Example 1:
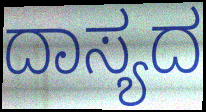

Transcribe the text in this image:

ದಾಸ್ಯದ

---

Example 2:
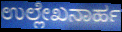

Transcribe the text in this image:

ಉಲ್ಲೇಖನಾರ್ಹ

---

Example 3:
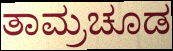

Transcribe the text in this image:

ತಾಮ್ರಚೂಡ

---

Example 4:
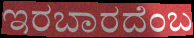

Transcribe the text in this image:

ಇರಬಾರದೆಂಬ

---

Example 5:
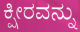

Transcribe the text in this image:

ಕ್ಷೀರವನ್ನು